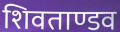
शिवताण्डव